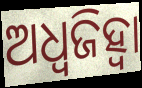
ଅଧ୍ୱଜିହ୍ବା